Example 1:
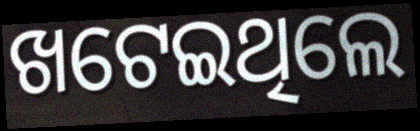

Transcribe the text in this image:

ଖଟେଇଥିଲେ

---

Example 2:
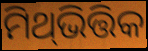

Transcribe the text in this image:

ମିଥ୍‍ଭିତ୍ତିକ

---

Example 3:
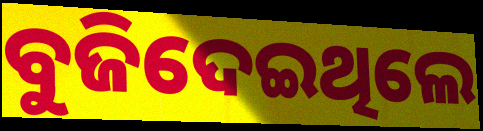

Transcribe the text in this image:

ବୁଜିଦେଇଥିଲେ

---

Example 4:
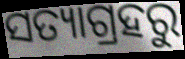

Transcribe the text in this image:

ସତ୍ୟାଗ୍ରହରୁ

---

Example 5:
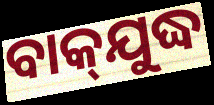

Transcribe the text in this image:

ବାକ୍‌ଯୁଦ୍ଧ